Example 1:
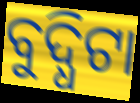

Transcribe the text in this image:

ବୁଦ୍ଧିଟା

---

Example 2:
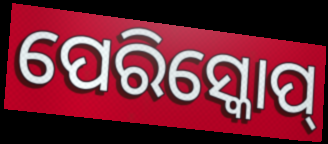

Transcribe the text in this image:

ପେରିସ୍କୋପ୍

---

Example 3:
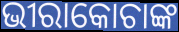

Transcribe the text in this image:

ଭୀରାକୋଚାଙ୍କ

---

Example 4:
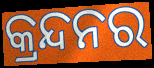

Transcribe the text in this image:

କ୍ରନ୍ଦନର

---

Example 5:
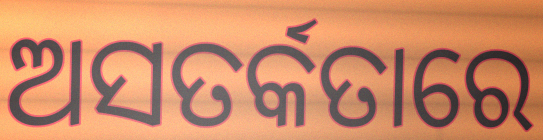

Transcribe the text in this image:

ଅସତର୍କତାରେ